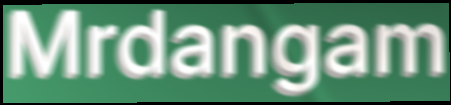
Mrdangam